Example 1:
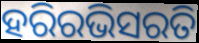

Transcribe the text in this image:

ହରିରଭିସରତି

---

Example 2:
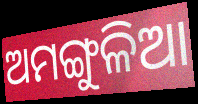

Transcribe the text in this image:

ଅମଙ୍ଗୁଳିଆ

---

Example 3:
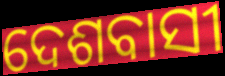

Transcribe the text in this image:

ଦେଶବାସୀ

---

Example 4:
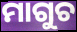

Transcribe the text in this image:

ମାଗୁଚ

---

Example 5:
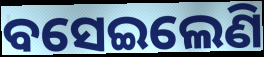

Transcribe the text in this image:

ବସେଇଲେଣି